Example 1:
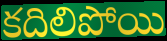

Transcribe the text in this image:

కదిలిపోయి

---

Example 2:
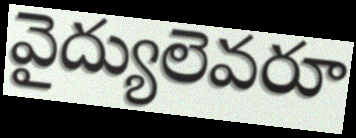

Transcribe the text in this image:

వైద్యులెవరూ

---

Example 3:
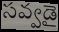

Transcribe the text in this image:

సవ్వడై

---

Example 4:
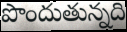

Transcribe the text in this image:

పొందుతున్నది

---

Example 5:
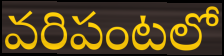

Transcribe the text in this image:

వరిపంటలో